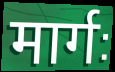
मार्गः